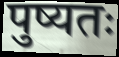
पुष्यतः